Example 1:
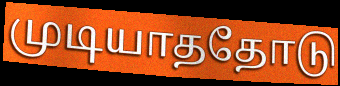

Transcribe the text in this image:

முடியாததோடு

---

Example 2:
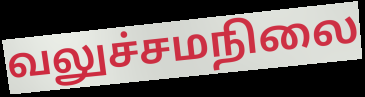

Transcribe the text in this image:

வலுச்சமநிலை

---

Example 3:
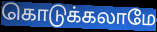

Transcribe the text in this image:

கொடுக்கலாமே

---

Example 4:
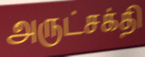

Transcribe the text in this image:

அருட்சக்தி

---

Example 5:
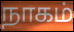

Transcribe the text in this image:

நாகம்